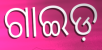
ଗାଇଡ଼